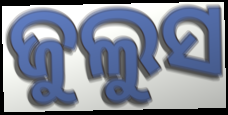
ଜୁଲୁସ